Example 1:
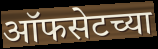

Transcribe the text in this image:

ऑफसेटच्या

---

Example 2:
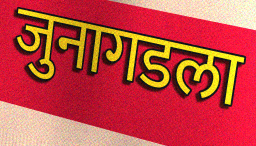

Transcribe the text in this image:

जुनागडला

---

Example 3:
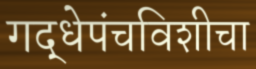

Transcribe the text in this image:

गद्धेपंचविशीचा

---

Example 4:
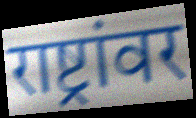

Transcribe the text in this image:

राष्ट्रांवर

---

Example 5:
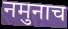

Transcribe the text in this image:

नमुनाच